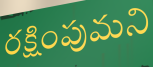
రక్షింపుమని